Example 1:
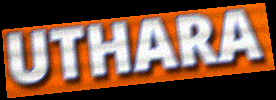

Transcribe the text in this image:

UTHARA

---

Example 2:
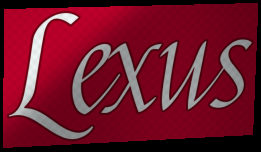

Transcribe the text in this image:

Lexus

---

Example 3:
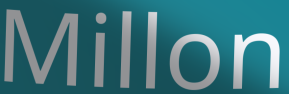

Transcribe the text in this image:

Millon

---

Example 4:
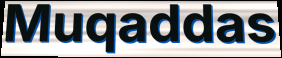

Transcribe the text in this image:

Muqaddas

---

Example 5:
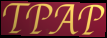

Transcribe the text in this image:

TPAP